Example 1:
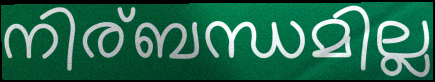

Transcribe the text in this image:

നിര്ബന്ധമില്ല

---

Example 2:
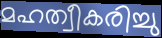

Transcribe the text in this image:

മഹത്വീകരിച്ചു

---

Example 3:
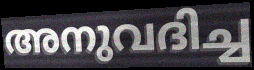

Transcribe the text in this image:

അനുവദിച്ച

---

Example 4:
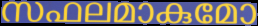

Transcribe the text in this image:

സഫലമാകുമോ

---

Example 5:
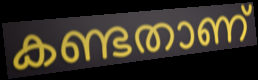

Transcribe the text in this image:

കണ്ടതാണ്